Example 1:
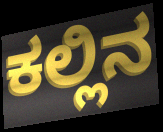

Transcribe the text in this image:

ಕಲ್ಲಿನ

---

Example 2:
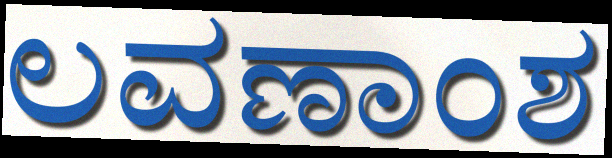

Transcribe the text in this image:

ಲವಣಾಂಶ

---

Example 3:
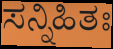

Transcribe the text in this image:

ಸನ್ನಿಹಿತಃ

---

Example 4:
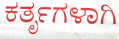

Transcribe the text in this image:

ಕರ್ತೃಗಳಾಗಿ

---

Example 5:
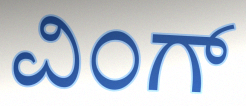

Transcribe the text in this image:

ವಿಂಗ್